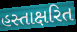
હસ્તાક્ષરિત